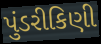
પુંડરીકિણી